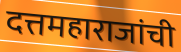
दत्तमहाराजांची